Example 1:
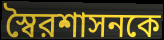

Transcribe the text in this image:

স্বৈরশাসনকে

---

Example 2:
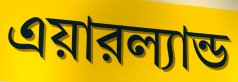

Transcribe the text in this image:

এয়ারল্যান্ড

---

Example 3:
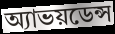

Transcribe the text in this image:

অ্যাভয়ডেন্স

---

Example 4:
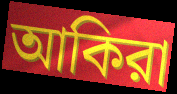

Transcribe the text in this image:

আকিরা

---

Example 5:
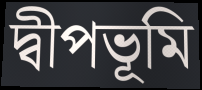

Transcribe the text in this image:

দ্বীপভূমি